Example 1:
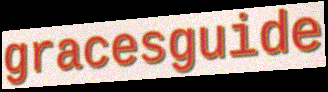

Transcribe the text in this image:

gracesguide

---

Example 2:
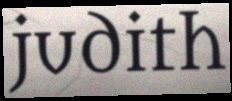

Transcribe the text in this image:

judith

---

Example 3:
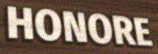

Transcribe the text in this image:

HONORE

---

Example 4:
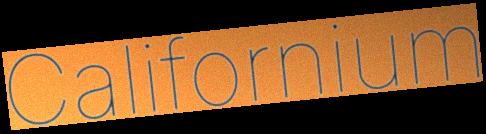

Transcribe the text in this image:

Californium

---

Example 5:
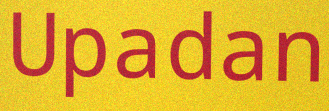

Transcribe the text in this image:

Upadan